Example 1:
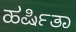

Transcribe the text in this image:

ಹರ್ಷಿತಾ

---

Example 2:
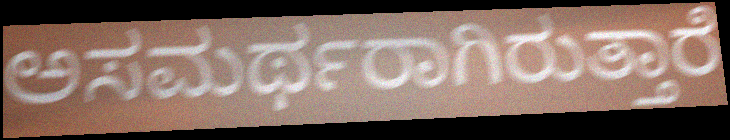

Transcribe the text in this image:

ಅಸಮರ್ಥರಾಗಿರುತ್ತಾರೆ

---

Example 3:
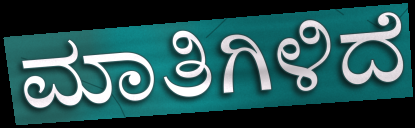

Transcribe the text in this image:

ಮಾತಿಗಿಳಿದೆ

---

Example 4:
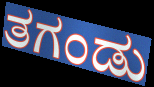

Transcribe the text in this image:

ತಗಂಡು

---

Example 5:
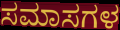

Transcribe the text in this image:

ಸಮಾಸಗಳ